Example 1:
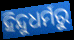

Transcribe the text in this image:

ହିନ୍ଦୁଧର୍ମରୁ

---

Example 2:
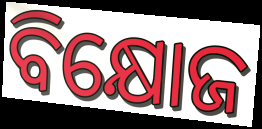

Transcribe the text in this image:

ବିକ୍ଷୋଜ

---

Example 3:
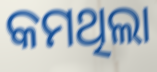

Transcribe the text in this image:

କମଥିଲା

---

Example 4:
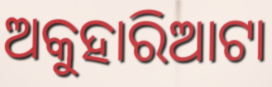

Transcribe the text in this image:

ଅକୁହାରିଆଟା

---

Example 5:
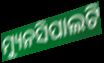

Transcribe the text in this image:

ମ୍ୟୁନସିପାଲଟି